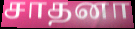
சாதனா